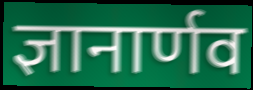
ज्ञानार्णव